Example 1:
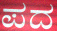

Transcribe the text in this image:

ಪದ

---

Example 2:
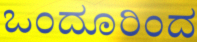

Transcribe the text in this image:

ಒಂದೂರಿಂದ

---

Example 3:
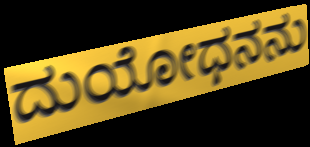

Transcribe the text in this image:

ದುಯೋಧನನು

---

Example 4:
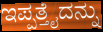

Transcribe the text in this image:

ಇಪ್ಪತ್ತೈದನ್ನು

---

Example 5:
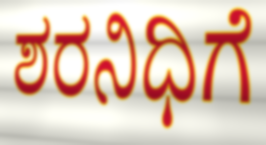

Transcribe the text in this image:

ಶರನಿಧಿಗೆ